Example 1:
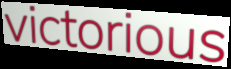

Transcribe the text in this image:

victorious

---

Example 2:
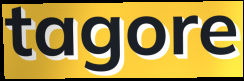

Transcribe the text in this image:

tagore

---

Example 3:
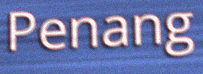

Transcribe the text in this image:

Penang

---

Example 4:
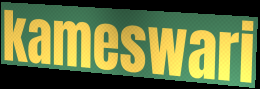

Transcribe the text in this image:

kameswari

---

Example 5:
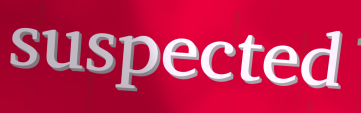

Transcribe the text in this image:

suspected